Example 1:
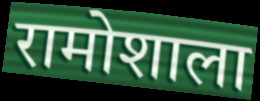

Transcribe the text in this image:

रामोशाला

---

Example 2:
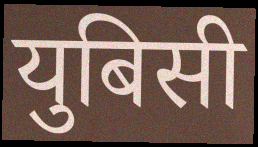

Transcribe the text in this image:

युबिसी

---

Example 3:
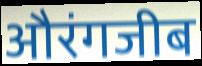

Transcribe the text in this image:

औरंगजीब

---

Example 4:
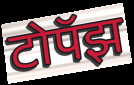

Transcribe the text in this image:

टोपॅझ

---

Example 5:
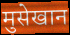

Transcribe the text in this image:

मुसेखान